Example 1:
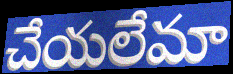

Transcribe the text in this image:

చేయలేమా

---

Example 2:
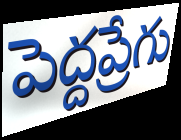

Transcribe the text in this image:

పెద్దప్రేగు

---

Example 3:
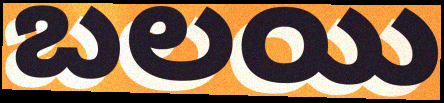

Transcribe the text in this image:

బలయి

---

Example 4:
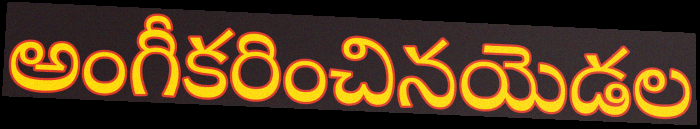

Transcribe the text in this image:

అంగీకరించినయెడల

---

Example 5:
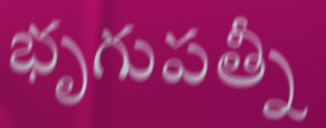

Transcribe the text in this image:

భృగుపత్నీ